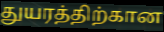
துயரத்திற்கான